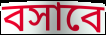
বসাবে